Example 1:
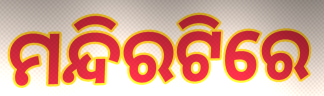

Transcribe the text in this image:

ମନ୍ଦିରଟିରେ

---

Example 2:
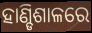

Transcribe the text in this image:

ହାଣ୍ଡିଶାଳରେ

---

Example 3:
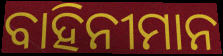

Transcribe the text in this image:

ବାହିନୀମାନ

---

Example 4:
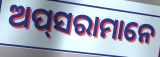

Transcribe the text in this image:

ଅପ୍‌ସରାମାନେ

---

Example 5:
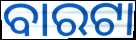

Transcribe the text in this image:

ବାରଟା